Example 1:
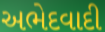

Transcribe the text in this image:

અભેદવાદી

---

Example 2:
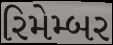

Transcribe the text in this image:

રિમેમ્બર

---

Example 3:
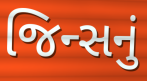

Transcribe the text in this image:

જિન્સનું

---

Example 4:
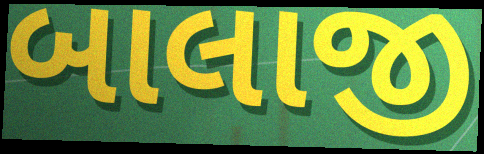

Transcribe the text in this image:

બાલાજી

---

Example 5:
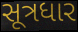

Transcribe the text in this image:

સૂત્રધાર